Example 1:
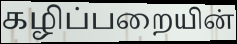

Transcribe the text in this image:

கழிப்பறையின்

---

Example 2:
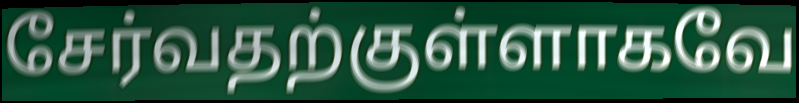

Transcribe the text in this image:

சேர்வதற்குள்ளாகவே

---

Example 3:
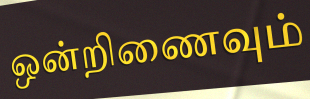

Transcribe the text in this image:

ஒன்றிணைவும்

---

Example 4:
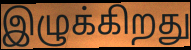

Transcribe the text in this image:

இழுக்கிறது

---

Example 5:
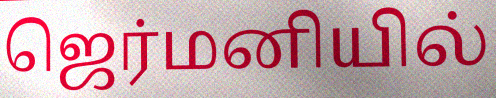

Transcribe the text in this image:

ஜெர்மனியில்